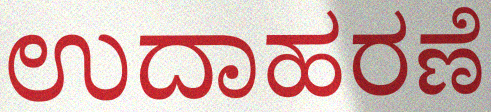
ಉದಾಹರಣೆ